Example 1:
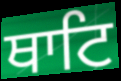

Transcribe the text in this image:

ਥਾਟਿ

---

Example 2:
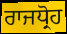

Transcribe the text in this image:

ਰਾਜਧ੍ਰੋਹ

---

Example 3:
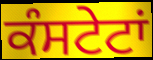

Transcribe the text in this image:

ਕੰਸਟੇਟਾਂ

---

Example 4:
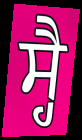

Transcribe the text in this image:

ਸ੍ਹੈ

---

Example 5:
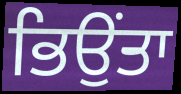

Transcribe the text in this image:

ਭਿਉਂਤਾ